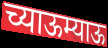
च्याऊम्याऊ